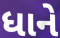
ધાને